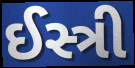
ઈસ્ત્રી